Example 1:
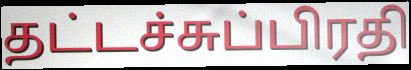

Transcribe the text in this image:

தட்டச்சுப்பிரதி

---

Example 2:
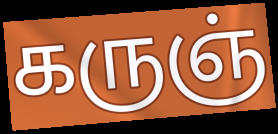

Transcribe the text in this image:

கருஞ்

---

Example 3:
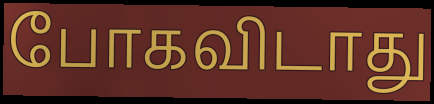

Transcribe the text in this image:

போகவிடாது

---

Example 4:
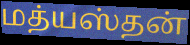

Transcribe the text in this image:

மத்யஸ்தன்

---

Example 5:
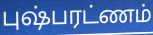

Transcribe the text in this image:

புஷ்பரட்ணம்